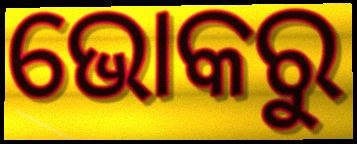
ଭୋକରୁ